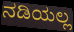
ನಡಿಯಲ್ಲ